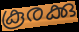
കൂരക്കു